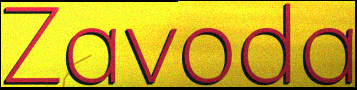
Zavoda